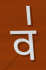
व॑